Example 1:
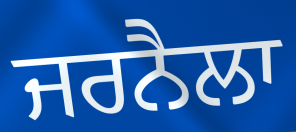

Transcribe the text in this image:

ਜਰਨੈਲਾ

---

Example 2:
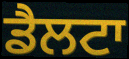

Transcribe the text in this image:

ਡੈਲਟਾ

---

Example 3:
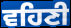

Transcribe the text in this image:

ਵਹਿਣੀ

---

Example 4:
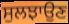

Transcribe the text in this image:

ਸੁਲਝਾਉਣ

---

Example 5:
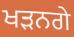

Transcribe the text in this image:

ਖੜਨਗੇ